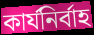
কাৰ্যনিৰ্বাহ